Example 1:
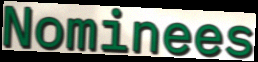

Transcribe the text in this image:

Nominees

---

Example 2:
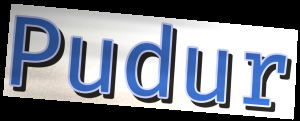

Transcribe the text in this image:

Pudur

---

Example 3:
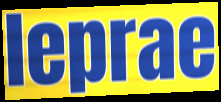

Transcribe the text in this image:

leprae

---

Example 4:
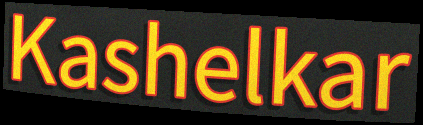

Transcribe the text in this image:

Kashelkar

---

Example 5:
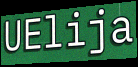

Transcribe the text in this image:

UElija